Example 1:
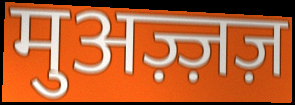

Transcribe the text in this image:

मुअज़्ज़ज़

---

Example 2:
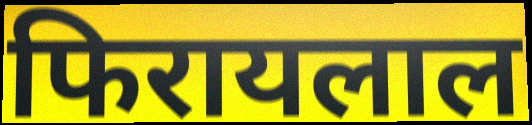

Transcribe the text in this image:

फिरायलाल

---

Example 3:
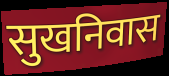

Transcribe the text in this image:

सुखनिवास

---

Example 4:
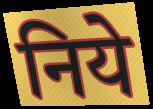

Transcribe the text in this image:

निये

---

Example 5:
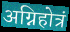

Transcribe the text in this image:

अग्निहोत्रं